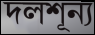
দলশূন্য